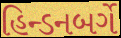
હિન્ડનબર્ગે